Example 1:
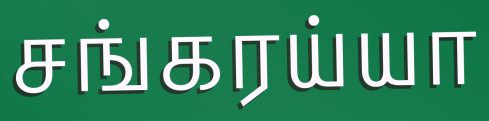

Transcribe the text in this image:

சங்கரய்யா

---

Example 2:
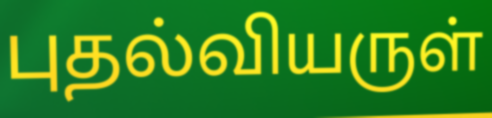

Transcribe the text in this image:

புதல்வியருள்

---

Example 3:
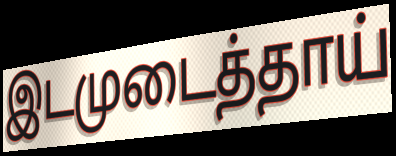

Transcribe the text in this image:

இடமுடைத்தாய்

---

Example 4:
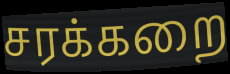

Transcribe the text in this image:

சரக்கறை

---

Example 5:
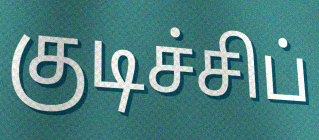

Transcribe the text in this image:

குடிச்சிப்